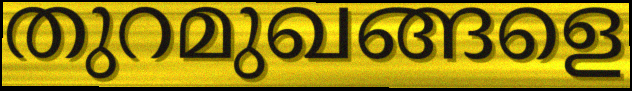
തുറമുഖങ്ങളെ